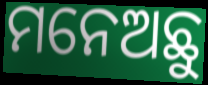
ମନେଅଛୁ